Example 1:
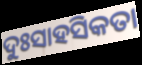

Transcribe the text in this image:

ଦୁଃସାହସିକତା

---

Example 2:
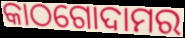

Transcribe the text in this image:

କାଠଗୋଦାମର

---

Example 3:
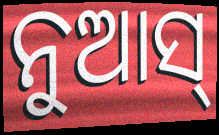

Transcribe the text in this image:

ନୁଆସ୍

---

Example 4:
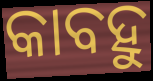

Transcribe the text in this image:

କାବହୁ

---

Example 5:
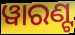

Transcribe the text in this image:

ୱାରଣ୍ଟ